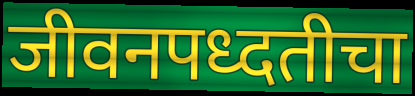
जीवनपध्दतीचा